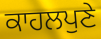
ਕਾਹਲਪੁਣੇ